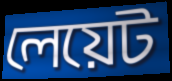
লেয়েট